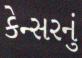
કેન્સરનું